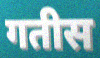
गतीस